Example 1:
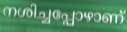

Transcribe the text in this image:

നശിച്ചപ്പോഴാണ്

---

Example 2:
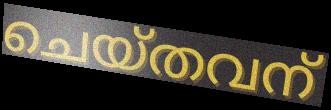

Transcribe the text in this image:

ചെയ്തവന്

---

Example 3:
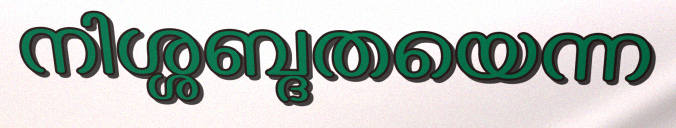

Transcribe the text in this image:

നിശ്ശബ്ദതയെന്ന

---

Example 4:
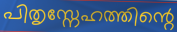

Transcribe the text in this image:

പിതൃസ്നേഹത്തിന്റെ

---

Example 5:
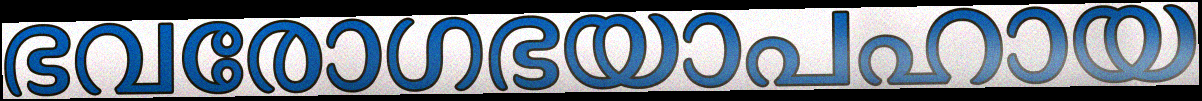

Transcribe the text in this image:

ഭവരോഗഭയാപഹായ